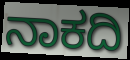
ನಾಕದಿ